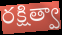
రక్షిత్వా